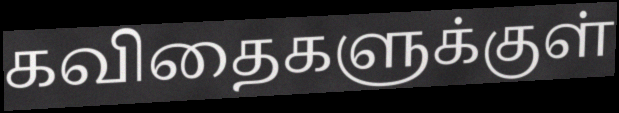
கவிதைகளுக்குள்